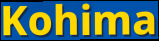
Kohima